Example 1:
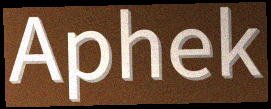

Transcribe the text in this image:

Aphek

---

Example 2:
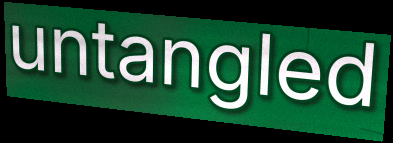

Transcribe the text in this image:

untangled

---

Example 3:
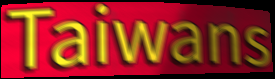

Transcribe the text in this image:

Taiwans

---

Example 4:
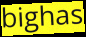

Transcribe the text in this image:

bighas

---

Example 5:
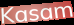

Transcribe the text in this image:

Kasam